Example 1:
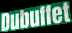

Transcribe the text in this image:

Dubuffet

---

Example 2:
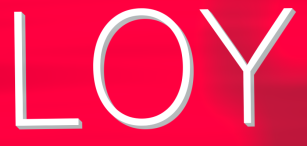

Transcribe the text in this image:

LOY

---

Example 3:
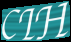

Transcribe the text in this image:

CIH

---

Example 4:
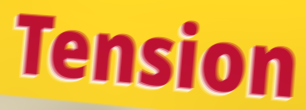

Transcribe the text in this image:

Tension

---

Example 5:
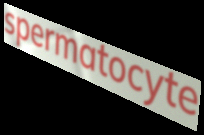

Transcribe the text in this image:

spermatocyte